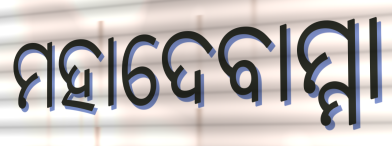
ମହାଦେବାମ୍ମା